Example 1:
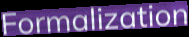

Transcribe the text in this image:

Formalization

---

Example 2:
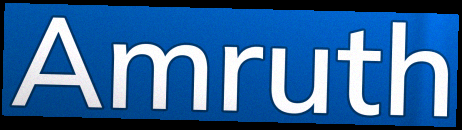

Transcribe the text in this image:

Amruth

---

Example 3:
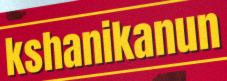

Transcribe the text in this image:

kshanikanun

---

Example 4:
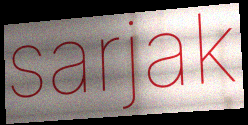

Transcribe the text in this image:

sarjak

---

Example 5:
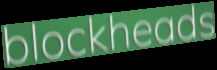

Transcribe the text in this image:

blockheads